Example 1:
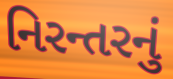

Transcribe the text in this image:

નિરન્તરનું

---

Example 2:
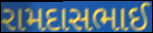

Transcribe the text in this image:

રામદાસભાઈ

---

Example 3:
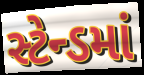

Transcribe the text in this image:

સ્ટેન્ડમાં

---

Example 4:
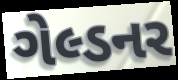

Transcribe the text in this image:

ગેલ્ડનર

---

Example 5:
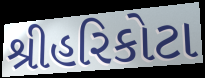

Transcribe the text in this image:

શ્રીહરિકોટા